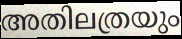
അതിലത്രയും